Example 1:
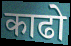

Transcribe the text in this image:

काढो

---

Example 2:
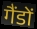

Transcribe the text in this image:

गैंडों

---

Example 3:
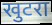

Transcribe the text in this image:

खुटरा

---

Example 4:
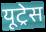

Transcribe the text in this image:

यूट्रेस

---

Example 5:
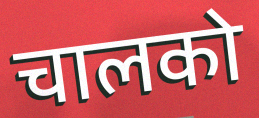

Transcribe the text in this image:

चालको